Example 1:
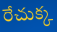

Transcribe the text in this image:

రేచుక్క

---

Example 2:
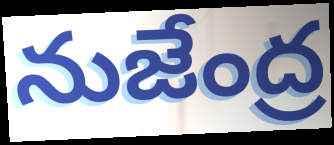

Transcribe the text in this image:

నుజేంద్ర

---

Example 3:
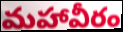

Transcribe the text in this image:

మహావీరం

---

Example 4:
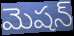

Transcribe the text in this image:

మెషన్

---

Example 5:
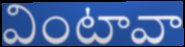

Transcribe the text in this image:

వింటావా